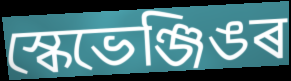
স্কেভেঞ্জিঙৰ